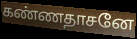
கண்ணதாசனே